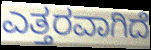
ಎತ್ತರವಾಗಿದೆ